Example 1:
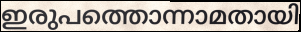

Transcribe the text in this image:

ഇരുപത്തൊന്നാമതായി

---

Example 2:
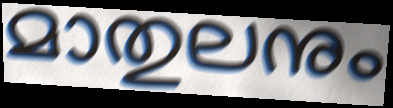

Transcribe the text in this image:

മാതുലനും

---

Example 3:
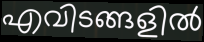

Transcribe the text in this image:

എവിടങ്ങളിൽ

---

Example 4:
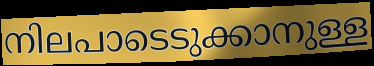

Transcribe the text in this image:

നിലപാടെടുക്കാനുള്ള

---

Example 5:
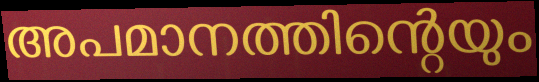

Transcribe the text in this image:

അപമാനത്തിന്റെയും